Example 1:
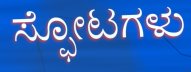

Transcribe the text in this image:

ಸ್ಫೋಟಗಳು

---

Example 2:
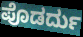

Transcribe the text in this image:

ಪೊಡರ್ದು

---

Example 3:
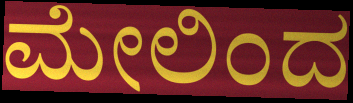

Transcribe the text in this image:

ಮೇಲಿಂದ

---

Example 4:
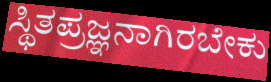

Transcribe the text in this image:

ಸ್ಥಿತಪ್ರಜ್ಞನಾಗಿರಬೇಕು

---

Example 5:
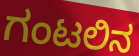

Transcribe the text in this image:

ಗಂಟಲಿನ